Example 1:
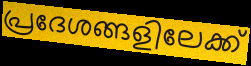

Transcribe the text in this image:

പ്രദേശങ്ങളിലേക്ക്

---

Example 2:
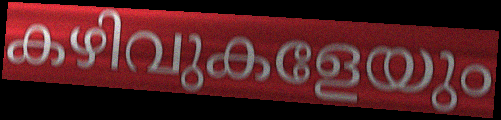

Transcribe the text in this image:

കഴിവുകളേയും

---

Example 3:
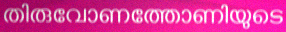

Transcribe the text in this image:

തിരുവോണത്തോണിയുടെ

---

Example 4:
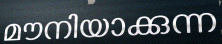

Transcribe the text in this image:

മൗനിയാക്കുന്ന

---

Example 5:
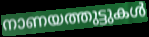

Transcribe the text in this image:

നാണയത്തുട്ടുകൾ